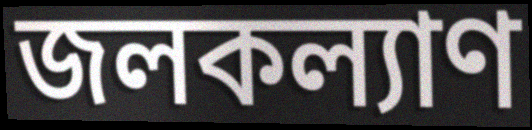
জলকল্যাণ